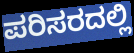
ಪರಿಸರದಲ್ಲಿ